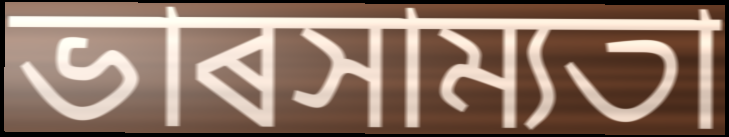
ভাৰসাম্যতা